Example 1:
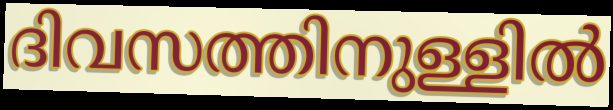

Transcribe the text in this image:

ദിവസത്തിനുള്ളിൽ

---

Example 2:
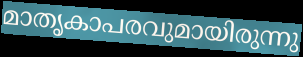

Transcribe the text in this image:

മാതൃകാപരവുമായിരുന്നു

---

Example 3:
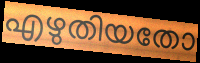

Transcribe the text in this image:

എഴുതിയതോ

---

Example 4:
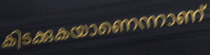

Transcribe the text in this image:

കിടക്കുകയാണെന്നാണ്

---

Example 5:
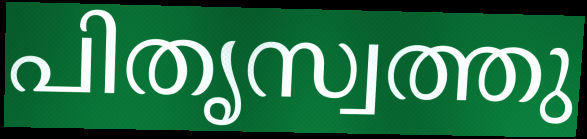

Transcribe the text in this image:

പിതൃസ്വത്തു